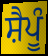
ਸ਼ੈਪੂੰ